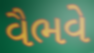
વૈભવે